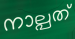
നാല്പത്